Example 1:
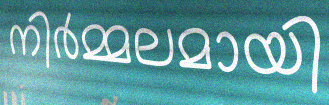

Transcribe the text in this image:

നിർമ്മലമായി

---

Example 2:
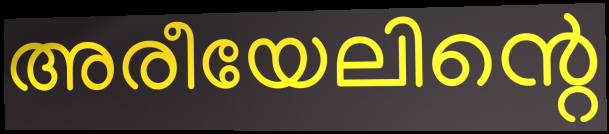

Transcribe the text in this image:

അരീയേലിന്റെ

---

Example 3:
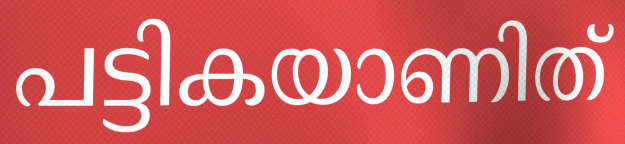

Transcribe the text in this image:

പട്ടികയാണിത്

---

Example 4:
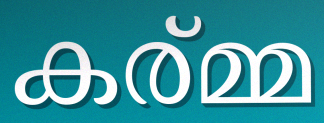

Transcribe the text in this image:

കര്മ്മ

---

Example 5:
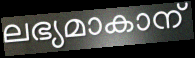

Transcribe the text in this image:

ലഭ്യമാകാന്